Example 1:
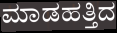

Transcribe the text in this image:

ಮಾಡಹತ್ತಿದ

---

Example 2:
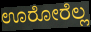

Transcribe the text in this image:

ಊರೋರೆಲ್ಲ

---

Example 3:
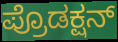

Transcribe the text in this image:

ಪ್ರೊಡಕ್ಷನ್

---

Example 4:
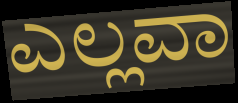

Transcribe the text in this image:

ಎಲ್ಲವಾ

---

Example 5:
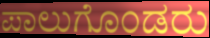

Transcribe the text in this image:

ಪಾಲುಗೊಂಡರು